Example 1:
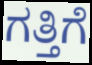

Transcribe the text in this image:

ಗತ್ತಿಗೆ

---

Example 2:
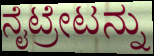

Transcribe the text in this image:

ನೈಟ್ರೇಟನ್ನು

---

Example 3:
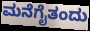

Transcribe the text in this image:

ಮನೆಗೈತಂದು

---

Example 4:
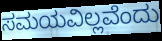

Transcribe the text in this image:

ಸಮಯವಿಲ್ಲವೆಂದು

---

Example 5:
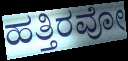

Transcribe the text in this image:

ಹತ್ತಿರವೋ